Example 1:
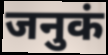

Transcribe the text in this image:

जनुकं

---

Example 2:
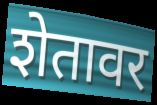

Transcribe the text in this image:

शेतावर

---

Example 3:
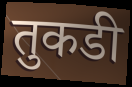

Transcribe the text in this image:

तुकडी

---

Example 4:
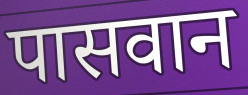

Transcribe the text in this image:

पासवान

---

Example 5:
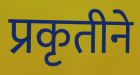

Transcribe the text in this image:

प्रकृतीने